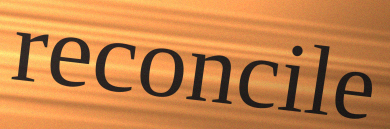
reconcile